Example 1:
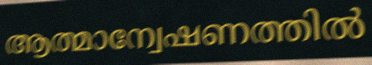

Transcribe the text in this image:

ആത്മാന്വേഷണത്തിൽ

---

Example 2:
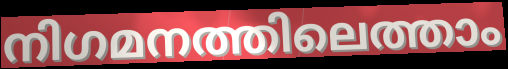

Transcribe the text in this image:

നിഗമനത്തിലെത്താം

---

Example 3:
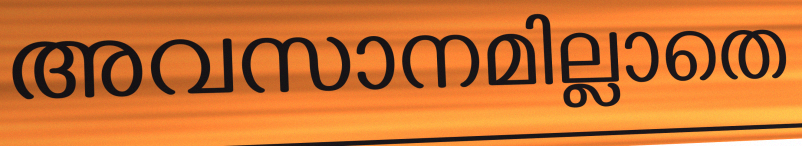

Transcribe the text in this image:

അവസാനമില്ലാതെ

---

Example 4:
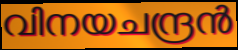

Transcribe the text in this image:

വിനയചന്ദ്രൻ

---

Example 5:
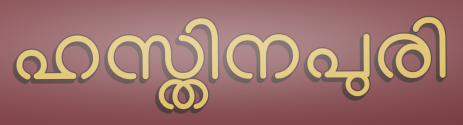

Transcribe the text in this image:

ഹസ്തിനപുരി